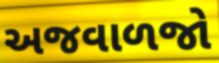
અજવાળજો